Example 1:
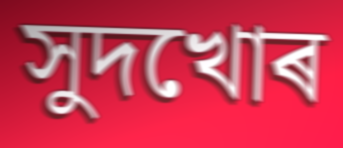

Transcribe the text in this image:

সুদখোৰ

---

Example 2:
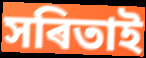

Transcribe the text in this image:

সৰিতাই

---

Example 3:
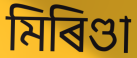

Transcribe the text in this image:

মিৰিণ্ডা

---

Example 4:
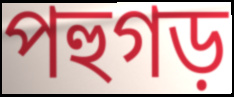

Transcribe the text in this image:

পহুগড়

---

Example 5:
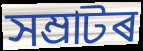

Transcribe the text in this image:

সম্ৰাটৰ